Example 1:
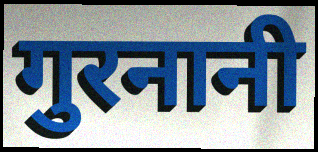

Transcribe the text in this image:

गुरनानी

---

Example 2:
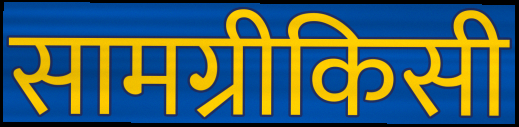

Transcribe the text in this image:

सामग्रीकिसी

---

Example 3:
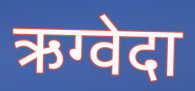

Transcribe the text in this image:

ऋग्वेदा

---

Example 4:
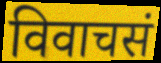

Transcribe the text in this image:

विवाचसं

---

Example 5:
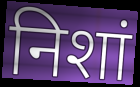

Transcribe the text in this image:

निशां